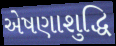
એષણાશુદ્ધિ